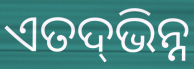
ଏତଦ୍‍ଭିନ୍ନ